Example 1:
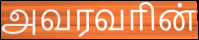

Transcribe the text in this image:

அவரவரின்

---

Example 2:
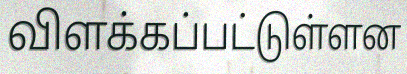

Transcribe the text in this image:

விளக்கப்பட்டுள்ளன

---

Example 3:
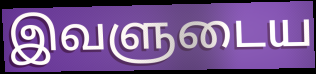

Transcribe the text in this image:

இவளுடைய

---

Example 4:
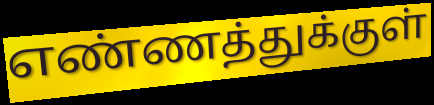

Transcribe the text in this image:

எண்ணத்துக்குள்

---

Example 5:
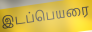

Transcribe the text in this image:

இடப்பெயரை